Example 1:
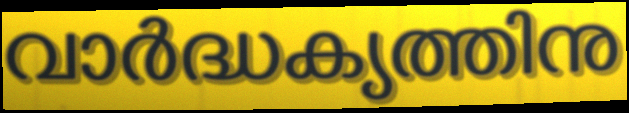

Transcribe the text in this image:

വാർദ്ധക്യത്തിനു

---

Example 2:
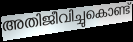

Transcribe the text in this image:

അതിജീവിച്ചുകൊണ്ട്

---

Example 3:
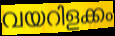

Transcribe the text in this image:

വയറിളക്കം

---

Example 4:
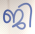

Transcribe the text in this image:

ജി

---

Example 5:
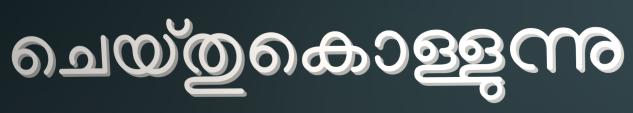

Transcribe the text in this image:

ചെയ്തുകൊള്ളുന്നു